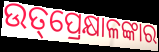
ଉତ୍‌ପ୍ରେକ୍ଷାଳଙ୍କାର